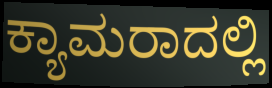
ಕ್ಯಾಮರಾದಲ್ಲಿ